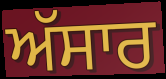
ਅੱਸਾਰ